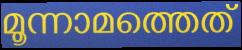
മൂന്നാമത്തെത്